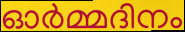
ഓർമ്മദിനം